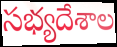
సభ్యదేశాల